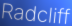
Radcliff